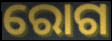
ରୋଗ